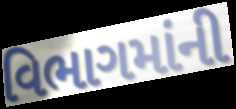
વિભાગમાંની